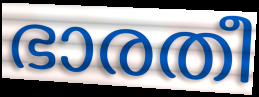
ഭാരതീ